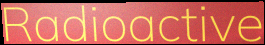
Radioactive